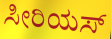
ಸೀರಿಯಸ್